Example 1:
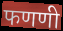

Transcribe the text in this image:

फणणी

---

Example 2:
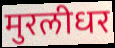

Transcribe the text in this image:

मुरलीधर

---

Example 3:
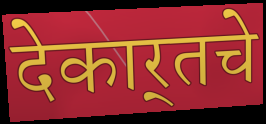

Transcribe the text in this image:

देकार्तचे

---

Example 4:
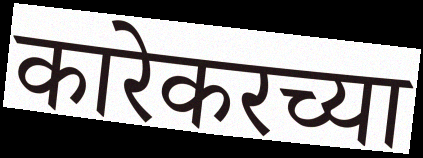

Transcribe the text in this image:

कारेकरच्या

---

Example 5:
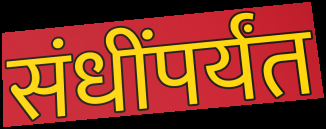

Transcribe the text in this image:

संधींपर्यंत